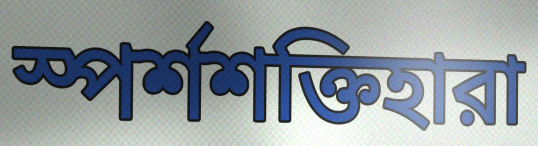
স্পর্শশক্তিহারা